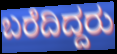
ಬರೆದಿದ್ದರು